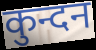
कुन्‍दन